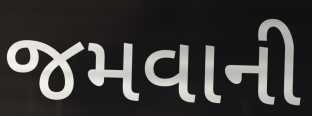
જમવાની